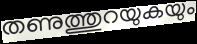
തണുത്തുറയുകയും